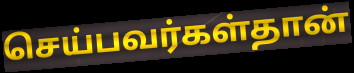
செய்பவர்கள்தான்